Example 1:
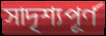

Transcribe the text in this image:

সাদৃশ্যপূর্ণ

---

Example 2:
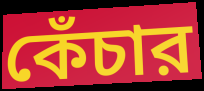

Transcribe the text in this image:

কেঁচার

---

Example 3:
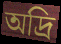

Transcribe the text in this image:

অদ্রি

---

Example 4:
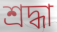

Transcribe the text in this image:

শ্রদ্ধা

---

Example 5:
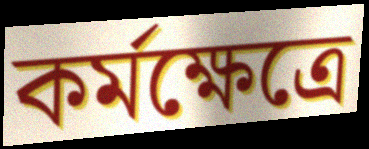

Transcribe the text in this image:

কর্মক্ষেত্রে